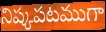
నిష్కపటముగా